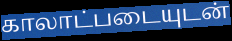
காலாட்படையுடன்